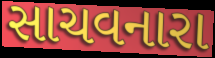
સાચવનારા